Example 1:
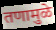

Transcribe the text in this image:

तणामुळे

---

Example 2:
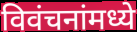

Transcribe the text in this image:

विवंचनांमध्ये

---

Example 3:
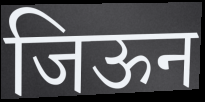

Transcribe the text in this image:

जिऊन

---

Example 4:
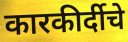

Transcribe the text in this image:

कारकीर्दीचे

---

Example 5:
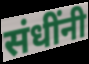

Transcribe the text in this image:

संधींनी